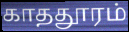
காததூரம்